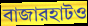
বাজারহাটও